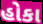
હોકા